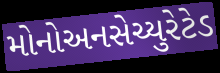
મોનોઅનસેચ્યુરેટેડ